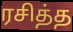
ரசித்த